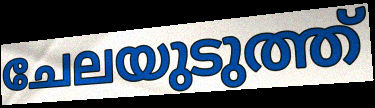
ചേലയുടുത്ത്